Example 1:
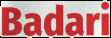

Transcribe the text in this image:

Badari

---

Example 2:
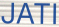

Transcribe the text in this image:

JATI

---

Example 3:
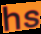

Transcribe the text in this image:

hs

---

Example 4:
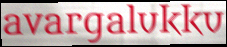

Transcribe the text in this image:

avargalukku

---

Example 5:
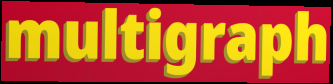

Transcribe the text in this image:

multigraph